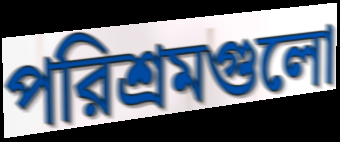
পরিশ্রমগুলো